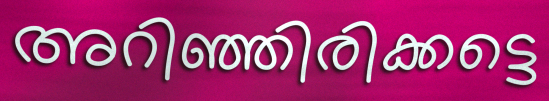
അറിഞ്ഞിരിക്കട്ടെ